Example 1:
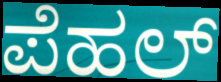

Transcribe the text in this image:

ಪೆಹಲ್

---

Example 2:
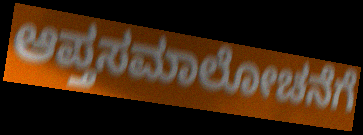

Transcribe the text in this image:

ಆಪ್ತಸಮಾಲೋಚನೆಗೆ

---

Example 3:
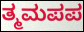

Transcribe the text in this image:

ತ್ಮಮಪಪ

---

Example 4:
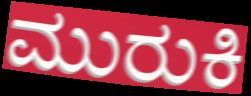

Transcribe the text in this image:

ಮುರುಕಿ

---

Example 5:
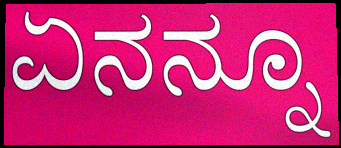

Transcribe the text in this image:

ಏನನ್ನೂ